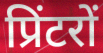
प्रिंटरों